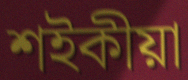
শইকীয়া